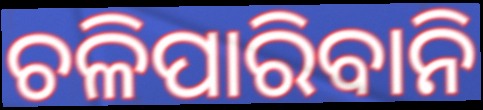
ଚଳିପାରିବାନି